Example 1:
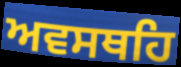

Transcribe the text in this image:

ਅਵਸਥਹਿ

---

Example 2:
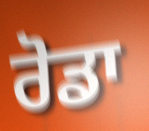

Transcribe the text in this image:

ਰੋਡਾ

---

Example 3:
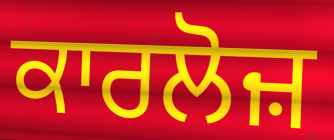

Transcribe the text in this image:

ਕਾਰਲੋਜ਼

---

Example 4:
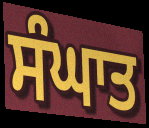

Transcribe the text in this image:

ਸੰਘਾਤ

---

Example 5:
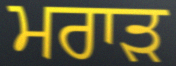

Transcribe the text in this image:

ਮਰਾੜ